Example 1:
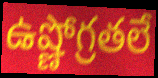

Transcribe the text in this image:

ఉష్ణోగ్రతలే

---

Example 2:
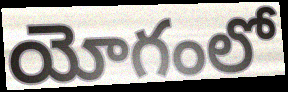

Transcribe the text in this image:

యోగంలో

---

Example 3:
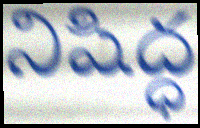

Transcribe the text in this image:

నిషిద్ధ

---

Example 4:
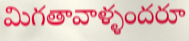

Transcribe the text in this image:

మిగతావాళ్ళందరూ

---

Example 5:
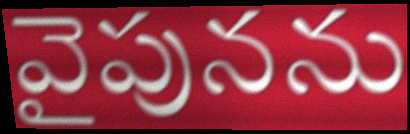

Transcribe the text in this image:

వైపునను